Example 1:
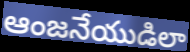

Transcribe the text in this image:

ఆంజనేయుడిలా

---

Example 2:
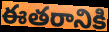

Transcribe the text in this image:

ఈతరానికి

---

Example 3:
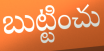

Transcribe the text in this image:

బుట్టించు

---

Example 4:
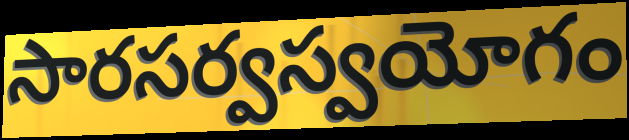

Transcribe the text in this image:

సారసర్వస్వయోగం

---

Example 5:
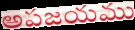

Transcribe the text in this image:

అపజయము